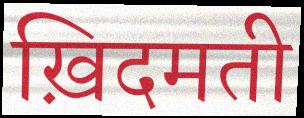
ख़िदमती